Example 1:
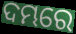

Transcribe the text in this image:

ଦମ୍ଭରେ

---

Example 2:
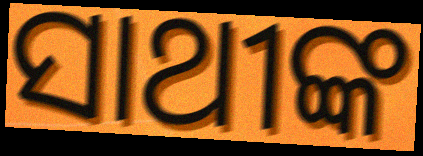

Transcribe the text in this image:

ସାଥୀଙ୍କ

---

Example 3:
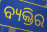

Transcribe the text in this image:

ବ୍ୟକ୍ତିର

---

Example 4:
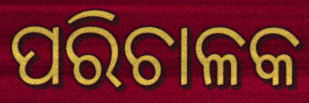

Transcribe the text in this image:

ପରିଚାଳକ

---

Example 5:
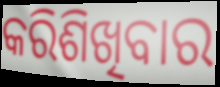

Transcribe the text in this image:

କରିଶିଖିବାର